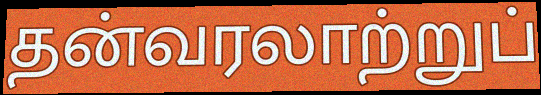
தன்வரலாற்றுப்